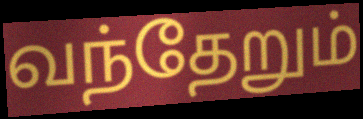
வந்தேறும்